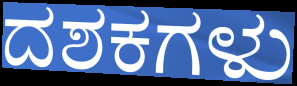
ದಶಕಗಳು